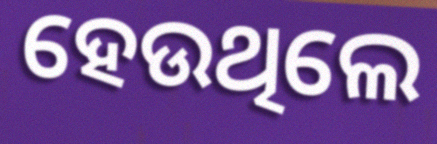
ହେଉଥିଲେ